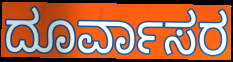
ದೂರ್ವಾಸರ